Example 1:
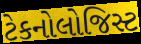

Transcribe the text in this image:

ટેકનોલોજિસ્ટ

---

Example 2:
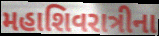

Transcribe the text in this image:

મહાશિવરાત્રીના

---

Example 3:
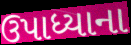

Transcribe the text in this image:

ઉપાધ્યાના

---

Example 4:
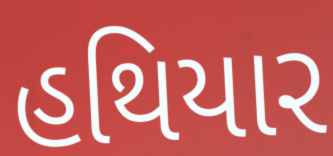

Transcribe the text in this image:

હથિયાર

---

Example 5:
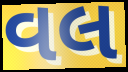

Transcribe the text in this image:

વલ